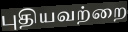
புதியவற்றை